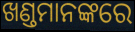
ଖଣ୍ଡମାନଙ୍କରେ